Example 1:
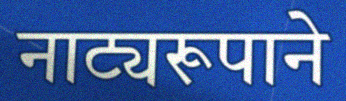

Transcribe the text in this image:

नाट्यरूपाने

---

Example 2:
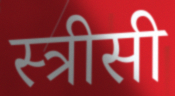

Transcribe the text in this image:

स्त्रीसी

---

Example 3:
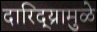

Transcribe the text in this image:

दारिद्य्रामुळे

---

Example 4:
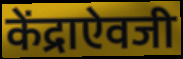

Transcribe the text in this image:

केंद्राऐवजी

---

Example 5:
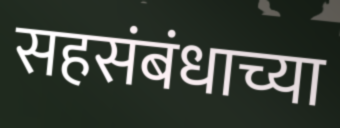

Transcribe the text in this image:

सहसंबंधाच्या